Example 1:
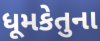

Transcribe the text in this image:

ધૂમકેતુના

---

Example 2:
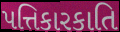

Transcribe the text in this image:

પત્તિકારકાતિ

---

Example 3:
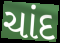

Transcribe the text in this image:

ચાંદ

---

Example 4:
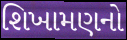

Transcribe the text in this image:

શિખામણનો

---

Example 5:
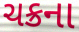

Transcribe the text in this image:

ચક્રના